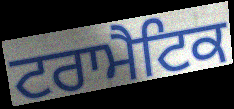
ਟਰਾਮੈਟਿਕ